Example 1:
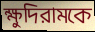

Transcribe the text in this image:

ক্ষুদিরামকে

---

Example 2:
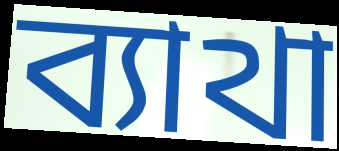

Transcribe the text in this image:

ব্যাথা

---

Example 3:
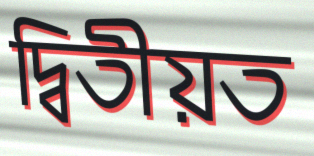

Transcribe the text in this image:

দ্বিতীয়ত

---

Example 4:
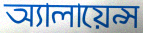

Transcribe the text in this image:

অ্যালায়েন্স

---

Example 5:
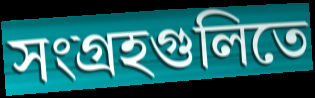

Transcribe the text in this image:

সংগ্রহগুলিতে